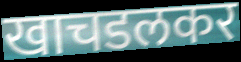
खाचडलकर